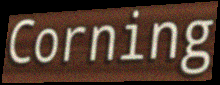
Corning